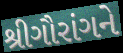
શ્રીગૌરાંગને